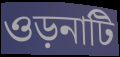
ওড়নাটি